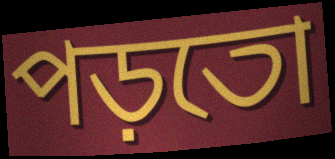
পড়তো